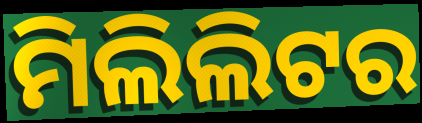
ମିଲିଲିଟର